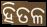
ହିତଳ